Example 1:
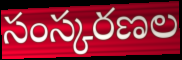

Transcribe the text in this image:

సంస్కరణల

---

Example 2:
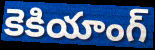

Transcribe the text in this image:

కెకియాంగ్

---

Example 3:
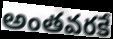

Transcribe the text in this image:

అంతవరకే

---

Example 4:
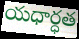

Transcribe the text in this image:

యధార్ధత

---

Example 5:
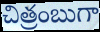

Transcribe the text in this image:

చిత్రంబుగా